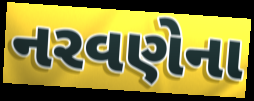
નરવણેના